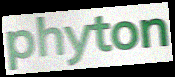
phyton